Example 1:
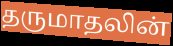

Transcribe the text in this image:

தருமாதலின்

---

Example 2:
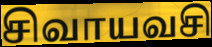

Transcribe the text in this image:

சிவாயவசி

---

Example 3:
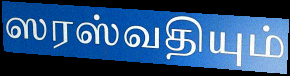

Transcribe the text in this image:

ஸரஸ்வதியும்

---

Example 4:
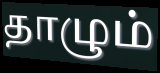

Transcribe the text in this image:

தாழும்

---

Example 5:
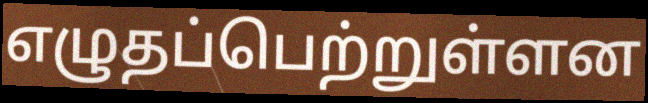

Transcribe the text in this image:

எழுதப்பெற்றுள்ளன